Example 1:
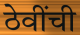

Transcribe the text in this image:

ठेवींची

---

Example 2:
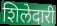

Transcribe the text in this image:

शिलेदारी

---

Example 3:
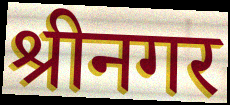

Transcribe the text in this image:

श्रीनगर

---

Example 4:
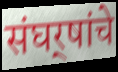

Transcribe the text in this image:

संघर्षांचे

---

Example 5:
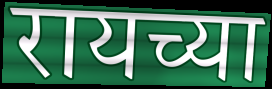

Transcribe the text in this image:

रायच्या